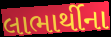
લાભાર્થીના